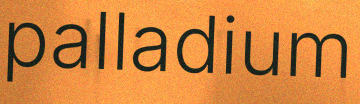
palladium